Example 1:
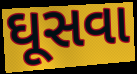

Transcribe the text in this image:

ઘૂસવા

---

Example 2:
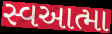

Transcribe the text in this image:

સ્વઆત્મા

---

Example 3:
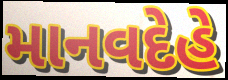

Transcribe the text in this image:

માનવદેહે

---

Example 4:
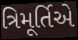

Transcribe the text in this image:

ત્રિમૂર્તિએ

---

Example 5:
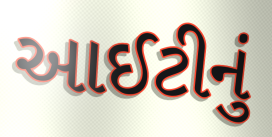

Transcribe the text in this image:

આઈટીનું